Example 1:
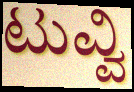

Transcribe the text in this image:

ಟುವ್ವಿ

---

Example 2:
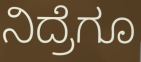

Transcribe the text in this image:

ನಿದ್ರೆಗೂ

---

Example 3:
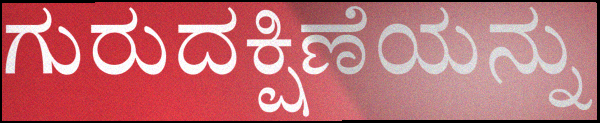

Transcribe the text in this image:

ಗುರುದಕ್ಷಿಣೆಯನ್ನು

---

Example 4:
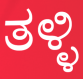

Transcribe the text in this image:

ತಳ್ಳಿ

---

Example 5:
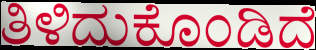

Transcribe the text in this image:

ತಿಳಿದುಕೊಂಡಿದೆ